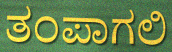
ತಂಪಾಗಲಿ